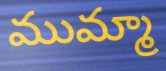
ముమ్మా